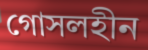
গোসলহীন